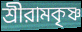
শ্রীরামকৃষ্ণ